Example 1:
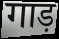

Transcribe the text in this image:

गाड़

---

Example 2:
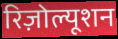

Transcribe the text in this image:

रिज़ोल्यूशन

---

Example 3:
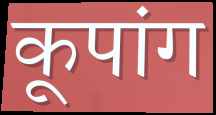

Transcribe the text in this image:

कूपांग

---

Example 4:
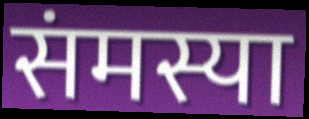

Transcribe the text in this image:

संमस्या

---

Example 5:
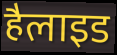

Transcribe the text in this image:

हैलाइड